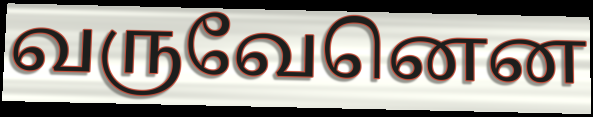
வருவேனென